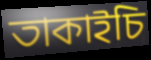
তাকাইচি